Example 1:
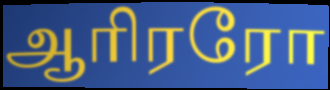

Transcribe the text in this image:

ஆரிரரோ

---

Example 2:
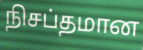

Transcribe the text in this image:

நிசப்தமான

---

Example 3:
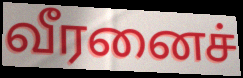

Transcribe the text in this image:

வீரனைச்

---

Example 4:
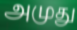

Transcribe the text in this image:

அமுது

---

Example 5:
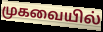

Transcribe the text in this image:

முகவையில்